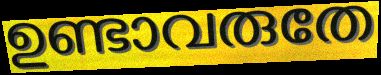
ഉണ്ടാവരുതേ